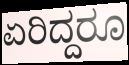
ಏರಿದ್ದರೂ